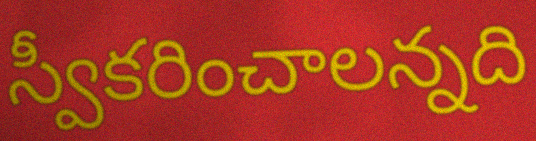
స్వీకరించాలన్నది